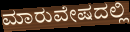
ಮಾರುವೇಷದಲ್ಲಿ